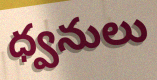
ధ్వనులు